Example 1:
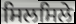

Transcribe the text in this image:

ਸਿਲਸਿਲੇ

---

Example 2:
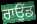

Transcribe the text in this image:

ਰਾਉਂਡ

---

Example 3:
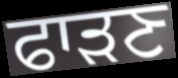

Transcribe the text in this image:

ਫਾੜਣ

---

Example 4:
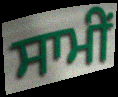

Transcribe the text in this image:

ਸਾਮੀਂ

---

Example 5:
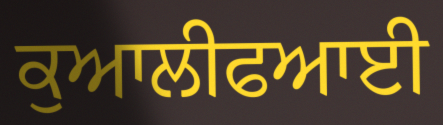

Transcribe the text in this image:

ਕੁਆਲੀਫਆਈ